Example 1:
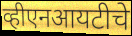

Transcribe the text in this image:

व्हीएनआयटीचे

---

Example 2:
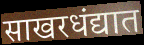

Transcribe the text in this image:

साखरधंद्यात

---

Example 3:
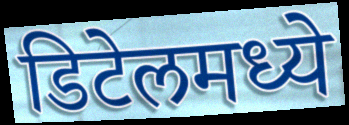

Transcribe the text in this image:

डिटेलमध्ये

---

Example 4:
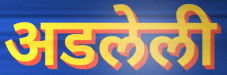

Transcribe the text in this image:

अडलेली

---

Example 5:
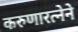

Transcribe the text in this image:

करुणारत्नेने